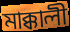
মাক্কালী